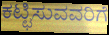
ಕಟ್ಟಿಸುವವರಿಗೆ